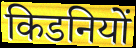
किडनियों